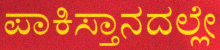
ಪಾಕಿಸ್ತಾನದಲ್ಲೇ